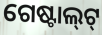
ଗେଷ୍ଟାଲ୍‌ଟ୍